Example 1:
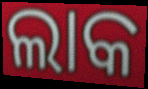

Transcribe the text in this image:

ଲାକ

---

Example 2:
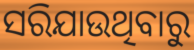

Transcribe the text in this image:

ସରିଯାଉଥିବାରୁ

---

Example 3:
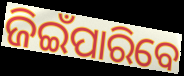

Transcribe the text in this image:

ଜିଇଁପାରିବେ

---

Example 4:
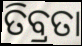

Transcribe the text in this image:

ତିବ୍ରତା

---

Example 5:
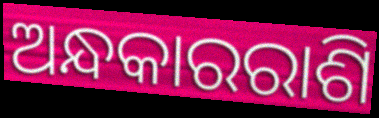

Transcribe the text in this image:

ଅନ୍ଧକାରରାଶି